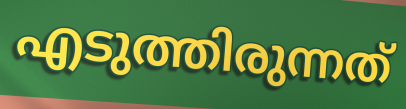
എടുത്തിരുന്നത്